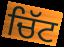
ਚਿੱਟ